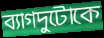
ব্যাগদুটোকে